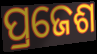
ପ୍ରଜେଶ